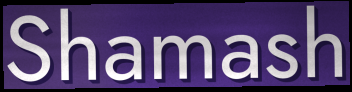
Shamash